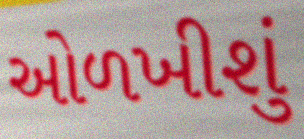
ઓળખીશું